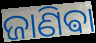
ଜାଣିଵା